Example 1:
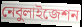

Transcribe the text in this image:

নেবুলাইজেশন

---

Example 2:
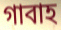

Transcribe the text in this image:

গাবাহ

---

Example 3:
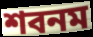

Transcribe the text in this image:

শবনম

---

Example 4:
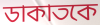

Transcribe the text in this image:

ডাকাতকে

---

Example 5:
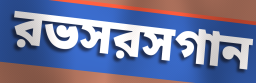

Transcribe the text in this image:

রভসরসগান